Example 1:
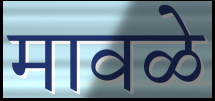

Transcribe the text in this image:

मावळे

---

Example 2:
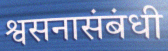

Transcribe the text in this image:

श्वसनासंबंधी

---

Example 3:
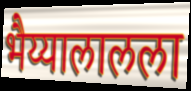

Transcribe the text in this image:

भैय्यालालला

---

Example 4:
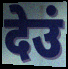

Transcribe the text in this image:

देउं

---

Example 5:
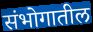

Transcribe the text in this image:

संभोगातील